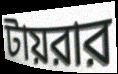
টায়রার